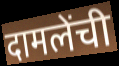
दामलेंची